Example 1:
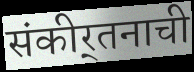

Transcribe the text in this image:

संकीर्तनाची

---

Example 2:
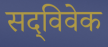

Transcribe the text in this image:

सद्‌विवेक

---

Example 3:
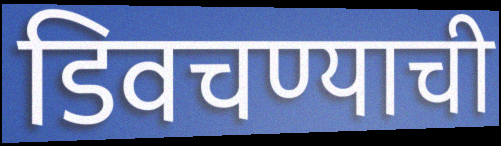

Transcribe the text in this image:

डिवचण्याची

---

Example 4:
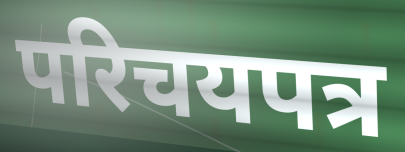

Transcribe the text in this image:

परिचयपत्र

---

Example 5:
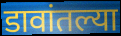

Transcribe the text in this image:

डावांतल्या